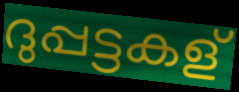
ദുപ്പട്ടകള്